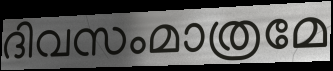
ദിവസംമാത്രമേ